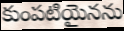
కుంపటియైనను